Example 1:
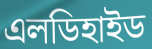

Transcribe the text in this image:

এলডিহাইড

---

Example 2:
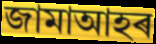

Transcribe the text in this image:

জামাআহৰ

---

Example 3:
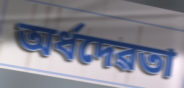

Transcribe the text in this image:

অৰ্ধদেৱতা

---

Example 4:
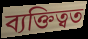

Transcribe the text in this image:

ব্যক্তিত্বত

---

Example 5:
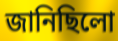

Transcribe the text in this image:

জানিছিলো